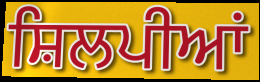
ਸ਼ਿਲਪੀਆਂ